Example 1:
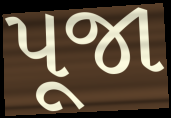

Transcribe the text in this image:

પૂજા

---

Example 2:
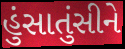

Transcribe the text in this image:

હુંસાતુંસીને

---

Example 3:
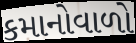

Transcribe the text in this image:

કમાનોવાળો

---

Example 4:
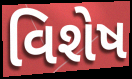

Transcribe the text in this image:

વિશેષ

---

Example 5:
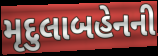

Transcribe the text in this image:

મૃદુલાબહેનની